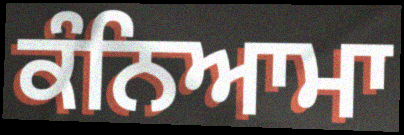
ਕੰਨਿਆਮਾ